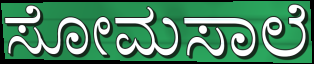
ಸೋಮಸಾಲೆ